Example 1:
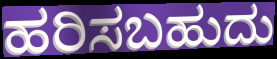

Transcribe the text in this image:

ಹರಿಸಬಹುದು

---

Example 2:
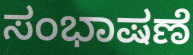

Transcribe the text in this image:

ಸಂಭಾಷಣೆ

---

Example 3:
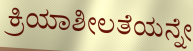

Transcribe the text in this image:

ಕ್ರಿಯಾಶೀಲತೆಯನ್ನೇ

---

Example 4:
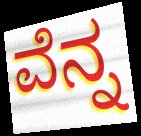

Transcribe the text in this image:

ವೆನ್ನ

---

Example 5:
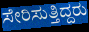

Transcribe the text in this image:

ಸೇರಿಸುತ್ತಿದ್ದರು